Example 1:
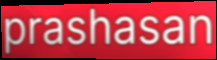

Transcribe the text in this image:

prashasan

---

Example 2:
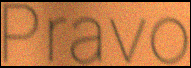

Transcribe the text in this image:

Pravo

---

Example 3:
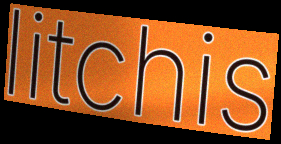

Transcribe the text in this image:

litchis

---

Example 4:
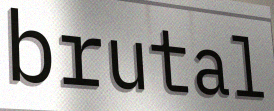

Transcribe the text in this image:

brutal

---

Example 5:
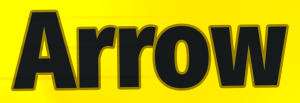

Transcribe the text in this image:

Arrow